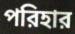
পরিহার